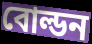
বোল্ডন